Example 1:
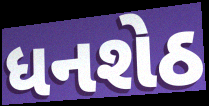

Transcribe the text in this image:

ધનશેઠ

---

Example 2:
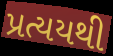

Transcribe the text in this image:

પ્રત્યયથી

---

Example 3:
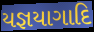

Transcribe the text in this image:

યજ્ઞયાગાદિ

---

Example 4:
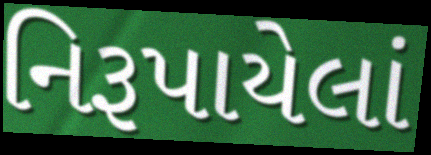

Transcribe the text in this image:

નિરૂપાયેલાં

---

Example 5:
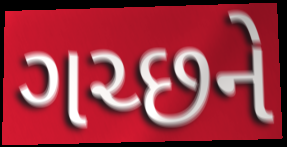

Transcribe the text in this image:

ગચ્છને